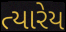
ત્યારેય